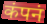
कंपनं